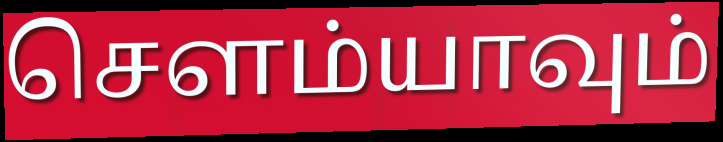
சௌம்யாவும்